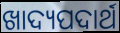
ଖାଦ୍ୟପଦାର୍ଥ